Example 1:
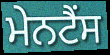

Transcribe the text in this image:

ਮੇਨਟੈਂਸ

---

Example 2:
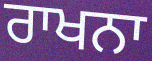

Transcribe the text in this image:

ਰਾਖਨਾ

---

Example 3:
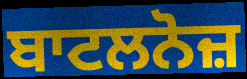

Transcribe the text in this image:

ਬਾਟਲਨੋਜ਼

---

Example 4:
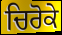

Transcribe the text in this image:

ਚਿਰੋਕੇ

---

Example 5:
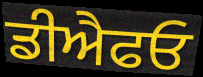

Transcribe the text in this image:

ਡੀਐਫਓ